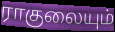
ராகுலையும்